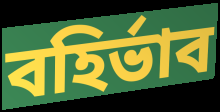
বহির্ভাব